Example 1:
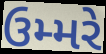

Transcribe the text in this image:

ઉમ્મરે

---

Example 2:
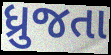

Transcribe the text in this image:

ધ્રુજતા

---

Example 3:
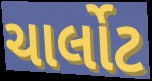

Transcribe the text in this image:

ચાર્લોટ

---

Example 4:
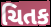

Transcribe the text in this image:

ચિતક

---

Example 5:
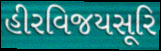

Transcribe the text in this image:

હીરવિજયસૂરિ